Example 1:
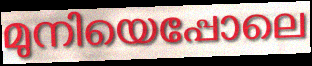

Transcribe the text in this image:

മുനിയെപ്പോലെ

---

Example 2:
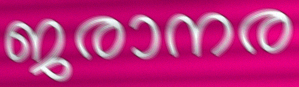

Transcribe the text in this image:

ജരാനര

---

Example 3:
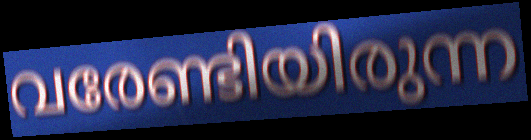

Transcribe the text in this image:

വരേണ്ടിയിരുന്ന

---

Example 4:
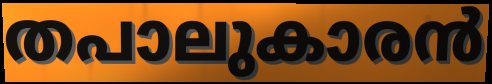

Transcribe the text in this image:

തപാലുകാരൻ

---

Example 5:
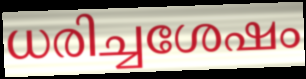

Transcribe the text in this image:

ധരിച്ചശേഷം